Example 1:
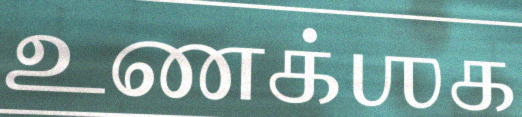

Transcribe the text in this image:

உணக்ஶக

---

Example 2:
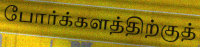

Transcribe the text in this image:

போர்க்களத்திற்குத்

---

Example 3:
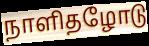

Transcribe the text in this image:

நாளிதழோடு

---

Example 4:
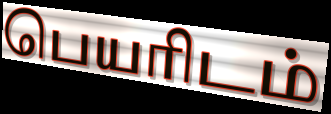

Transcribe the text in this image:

பெயரிடம்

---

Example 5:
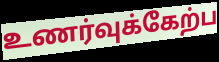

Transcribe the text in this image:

உணர்வுக்கேற்ப